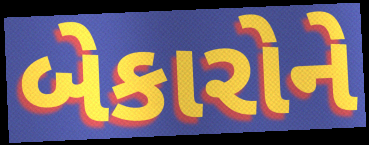
બેકારોને